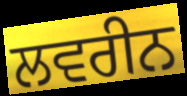
ਲਵਰੀਨ